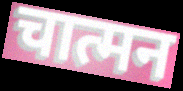
चात्मन